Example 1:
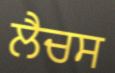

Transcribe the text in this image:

ਲੈਚਸ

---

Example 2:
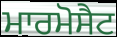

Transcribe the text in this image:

ਮਾਰਮੋਸੈਟ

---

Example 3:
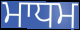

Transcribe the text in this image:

ਮਾਧਮ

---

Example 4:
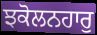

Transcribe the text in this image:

ਝਕੋਲਨਹਾਰੁ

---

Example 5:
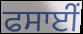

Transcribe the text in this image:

ਫਸਾਈਂ